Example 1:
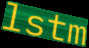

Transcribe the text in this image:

lstm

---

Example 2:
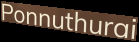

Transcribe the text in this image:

Ponnuthurai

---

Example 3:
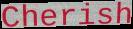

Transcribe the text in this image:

Cherish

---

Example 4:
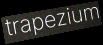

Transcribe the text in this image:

trapezium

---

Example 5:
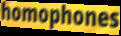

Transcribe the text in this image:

homophones